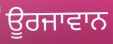
ਊਰਜਾਵਾਨ